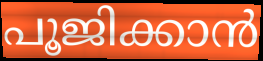
പൂജിക്കാൻ